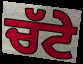
ਚੱਟੇ